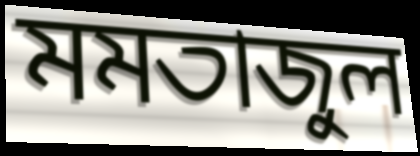
মমতাজুল